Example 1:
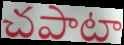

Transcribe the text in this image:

చపాటా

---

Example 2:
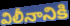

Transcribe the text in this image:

విలీనానికి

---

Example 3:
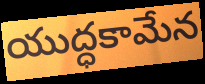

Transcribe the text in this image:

యుద్ధకామేన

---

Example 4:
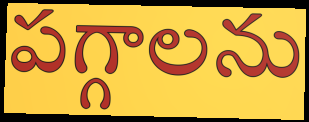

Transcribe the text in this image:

పగ్గాలను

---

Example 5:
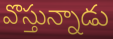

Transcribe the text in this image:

వొస్తున్నాడు